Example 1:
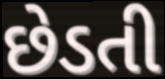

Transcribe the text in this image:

છેડતી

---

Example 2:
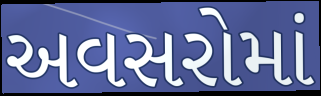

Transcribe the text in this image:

અવસરોમાં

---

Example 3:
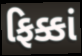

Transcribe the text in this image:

ફિક્કાં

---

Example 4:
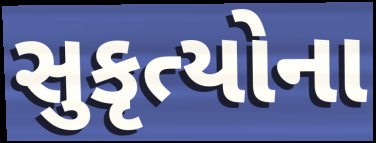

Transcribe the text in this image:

સુકૃત્યોના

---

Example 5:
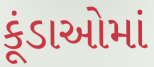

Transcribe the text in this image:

કૂંડાઓમાં